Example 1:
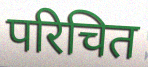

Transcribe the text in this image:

परिचित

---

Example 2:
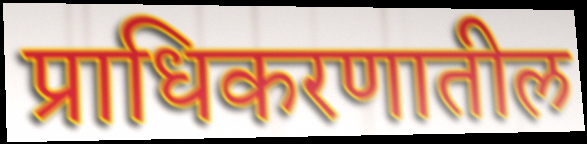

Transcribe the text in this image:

प्राधिकरणातील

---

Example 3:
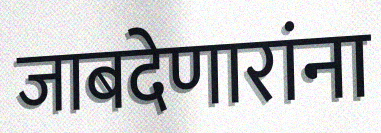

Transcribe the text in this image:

जाबदेणारांना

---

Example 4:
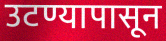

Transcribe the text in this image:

उटण्यापासून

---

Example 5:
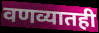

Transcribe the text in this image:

वणव्यातही